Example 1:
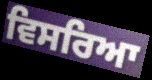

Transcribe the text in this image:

ਵਿਸਰਿਆ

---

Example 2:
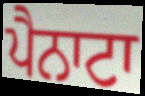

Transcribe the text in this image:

ਪੈਨਾਟਾ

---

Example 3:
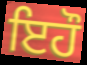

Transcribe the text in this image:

ਇਹੌ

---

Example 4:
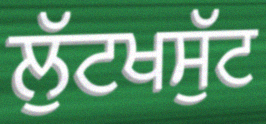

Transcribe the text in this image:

ਲੁੱਟਖਸੁੱਟ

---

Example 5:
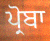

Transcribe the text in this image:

ਪ੍ਰੋਬਾ